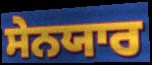
ਸੇਨਯਾਰ